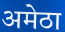
अमेठा